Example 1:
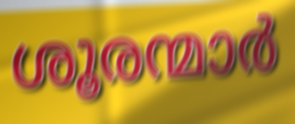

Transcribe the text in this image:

ശൂരന്മാർ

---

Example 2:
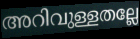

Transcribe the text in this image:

അറിവുള്ളതല്ലേ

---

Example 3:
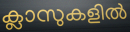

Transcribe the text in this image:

ക്ലാസുകളിൽ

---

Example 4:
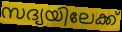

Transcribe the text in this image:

സദ്യയിലേക്ക്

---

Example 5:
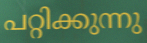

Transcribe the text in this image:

പറ്റിക്കുന്നു